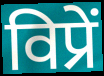
विप्रें